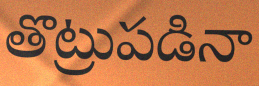
తొట్రుపడినా